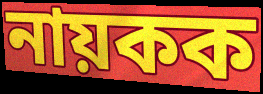
নায়কক